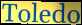
Toledo